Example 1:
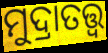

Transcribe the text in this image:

ମୁଦ୍ରାତତ୍ତ୍ବ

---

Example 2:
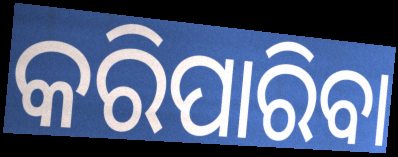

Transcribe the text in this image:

କରିପାରିବା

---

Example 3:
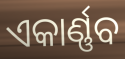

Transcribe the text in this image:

ଏକାର୍ଣ୍ଣବ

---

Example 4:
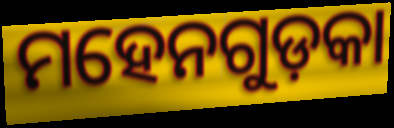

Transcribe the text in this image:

ମହେନଗୁଡ଼କା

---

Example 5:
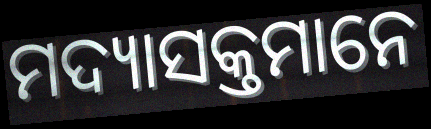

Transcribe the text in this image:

ମଦ୍ୟାସକ୍ତମାନେ